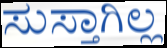
ಸುಸ್ತಾಗಿಲ್ಲ